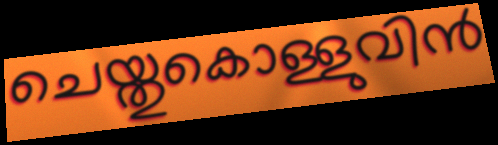
ചെയ്തുകൊള്ളുവിൻ